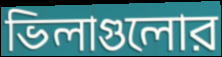
ভিলাগুলোর